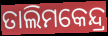
ତାଲିମକେନ୍ଦ୍ର